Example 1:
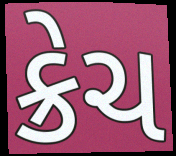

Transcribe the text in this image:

ક્રેચ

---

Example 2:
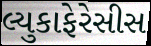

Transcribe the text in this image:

લ્યુકાફેરેસીસ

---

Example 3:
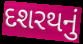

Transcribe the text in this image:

દશરથનું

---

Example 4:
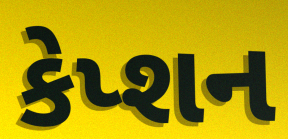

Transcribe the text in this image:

કેપ્શન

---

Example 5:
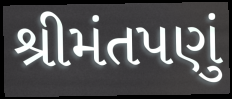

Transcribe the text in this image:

શ્રીમંતપણું